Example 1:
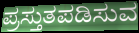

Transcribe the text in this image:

ಪ್ರಸ್ತುತಪಡಿಸುವ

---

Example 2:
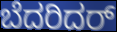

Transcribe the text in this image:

ಬೆದರಿದರ್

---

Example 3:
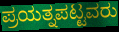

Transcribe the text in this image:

ಪ್ರಯತ್ನಪಟ್ಟವರು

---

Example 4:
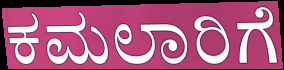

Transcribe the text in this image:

ಕಮಲಾರಿಗೆ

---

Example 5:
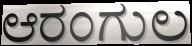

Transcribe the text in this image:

ಆರಂಗುಲ